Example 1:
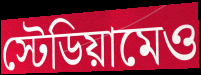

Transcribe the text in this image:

স্টেডিয়ামেও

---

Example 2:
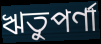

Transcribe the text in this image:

ঋতুপর্ণা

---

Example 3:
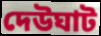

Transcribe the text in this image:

দেউঘাট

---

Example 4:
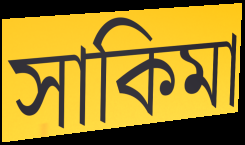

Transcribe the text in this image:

সাকিমা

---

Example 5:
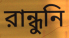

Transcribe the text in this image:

রান্ধুনি